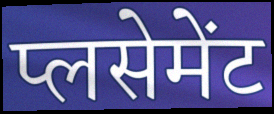
प्लसेमेंट